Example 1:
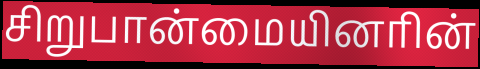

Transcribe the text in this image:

சிறுபான்மையினரின்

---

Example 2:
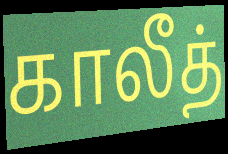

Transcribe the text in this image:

காலீத்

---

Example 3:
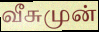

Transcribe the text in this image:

வீசுமுன்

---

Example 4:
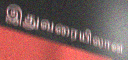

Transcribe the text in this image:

இதுவரையிலான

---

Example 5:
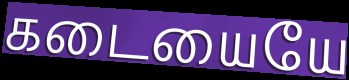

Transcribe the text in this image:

கடையையே